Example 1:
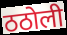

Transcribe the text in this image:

ठठोली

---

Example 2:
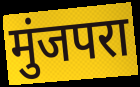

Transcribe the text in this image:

मुंजपरा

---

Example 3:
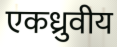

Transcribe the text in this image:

एकध्रुवीय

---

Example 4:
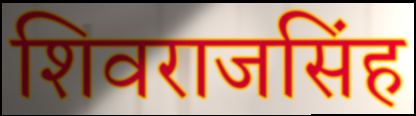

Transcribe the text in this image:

शिवराजसिंह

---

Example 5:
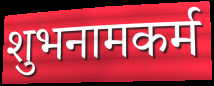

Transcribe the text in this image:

शुभनामकर्म